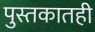
पुस्तकातही